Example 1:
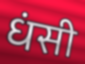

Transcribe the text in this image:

धंसी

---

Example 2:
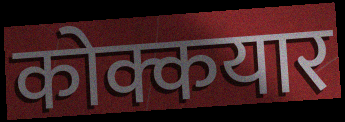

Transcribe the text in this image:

कोक्कयार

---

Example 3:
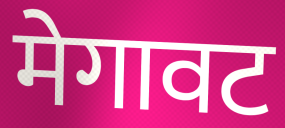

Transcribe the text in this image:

मेगावट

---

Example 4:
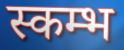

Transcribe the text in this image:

स्कम्भ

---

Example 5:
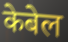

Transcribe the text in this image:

केबेल